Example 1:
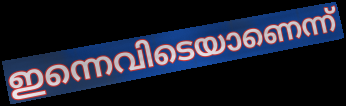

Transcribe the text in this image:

ഇന്നെവിടെയാണെന്ന്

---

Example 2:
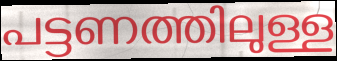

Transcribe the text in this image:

പട്ടണത്തിലുള്ള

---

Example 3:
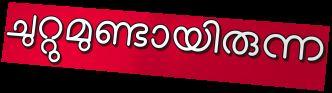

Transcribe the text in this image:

ചുറ്റുമുണ്ടായിരുന്ന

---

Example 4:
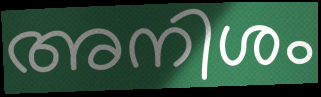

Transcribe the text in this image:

അനിശം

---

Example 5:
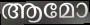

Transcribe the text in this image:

ആമോ